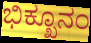
ಭಿಕ್ಖೂನಂ